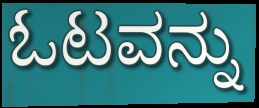
ಓಟವನ್ನು